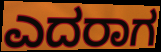
ಎದರಾಗ